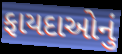
ફાયદાઓનું